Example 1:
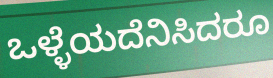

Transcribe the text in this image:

ಒಳ್ಳೆಯದೆನಿಸಿದರೂ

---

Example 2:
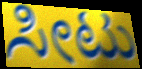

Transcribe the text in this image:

ಸೀಟು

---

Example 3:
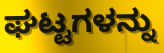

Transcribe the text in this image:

ಘಟ್ಟಗಳನ್ನು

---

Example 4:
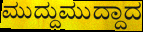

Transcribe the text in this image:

ಮುದ್ದುಮುದ್ದಾದ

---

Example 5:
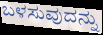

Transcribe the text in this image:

ಬಳಸುವುದನ್ನು